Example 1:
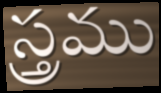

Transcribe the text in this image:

స్త్రము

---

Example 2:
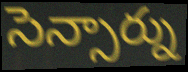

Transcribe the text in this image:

సెన్సార్ను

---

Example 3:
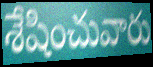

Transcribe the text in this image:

శేషించువారు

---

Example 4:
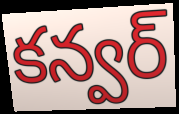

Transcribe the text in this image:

కన్వర్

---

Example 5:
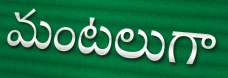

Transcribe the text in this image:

మంటలుగా